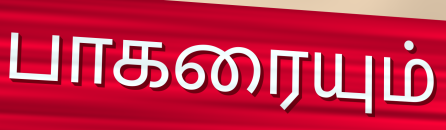
பாகரையும்